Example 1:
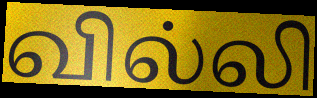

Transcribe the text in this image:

வில்லி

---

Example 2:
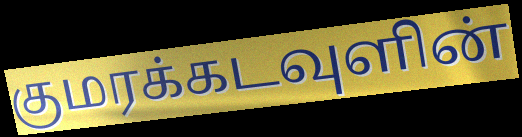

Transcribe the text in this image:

குமரக்கடவுளின்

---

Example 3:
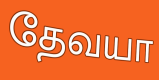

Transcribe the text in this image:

தேவயா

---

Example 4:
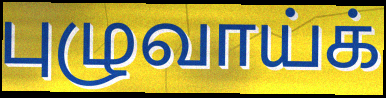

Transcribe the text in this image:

புழுவாய்க்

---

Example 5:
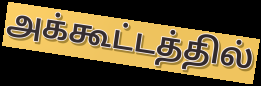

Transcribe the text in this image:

அக்கூட்டத்தில்